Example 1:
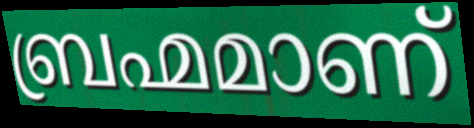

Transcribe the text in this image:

ബ്രഹ്മമാണ്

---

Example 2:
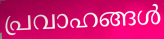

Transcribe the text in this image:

പ്രവാഹങ്ങൾ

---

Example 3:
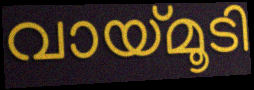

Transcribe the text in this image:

വായ്മൂടി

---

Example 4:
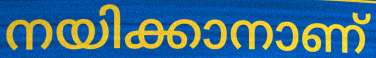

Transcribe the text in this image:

നയിക്കാനാണ്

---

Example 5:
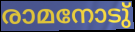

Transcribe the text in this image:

രാമനോടു്